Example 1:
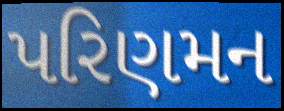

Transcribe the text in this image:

પરિણમન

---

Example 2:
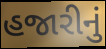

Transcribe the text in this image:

હજારીનું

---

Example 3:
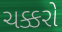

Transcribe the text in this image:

ચક્કરો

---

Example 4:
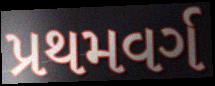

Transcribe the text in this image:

પ્રથમવર્ગ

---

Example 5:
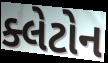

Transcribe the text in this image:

ક્લેટોન